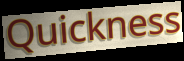
Quickness